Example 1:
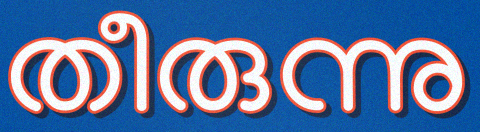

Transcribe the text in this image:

തീരുന്നു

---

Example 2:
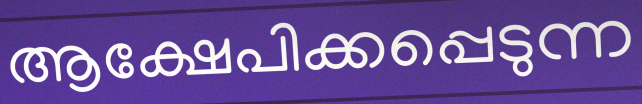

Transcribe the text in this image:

ആക്ഷേപിക്കപ്പെടുന്ന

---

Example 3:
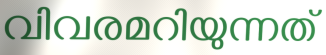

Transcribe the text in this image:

വിവരമറിയുന്നത്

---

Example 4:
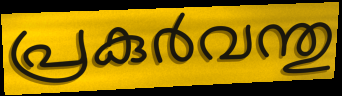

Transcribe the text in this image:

പ്രകുർവന്തു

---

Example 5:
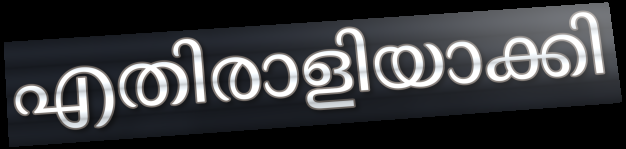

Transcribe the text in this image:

എതിരാളിയാക്കി